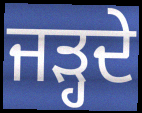
ਜੜ੍ਹਦੇ